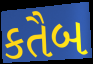
કતૈબ